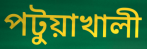
পটুয়াখালী